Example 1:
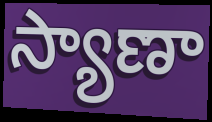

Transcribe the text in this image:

స్యాణా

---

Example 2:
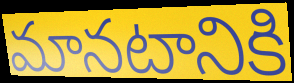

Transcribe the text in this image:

మానటానికి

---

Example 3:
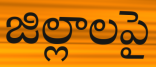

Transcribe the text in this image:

జిల్లాలపై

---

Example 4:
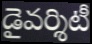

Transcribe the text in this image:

డైవర్శిటీ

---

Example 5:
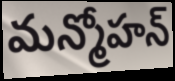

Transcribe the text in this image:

మన్మోహన్